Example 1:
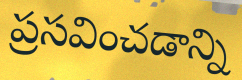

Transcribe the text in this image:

ప్రసవించడాన్ని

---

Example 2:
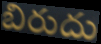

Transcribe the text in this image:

బిరుదు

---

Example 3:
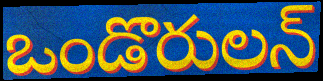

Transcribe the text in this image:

ఒండొరులన్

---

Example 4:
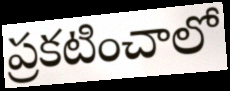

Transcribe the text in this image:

ప్రకటించాలో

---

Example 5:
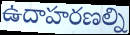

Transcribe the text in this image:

ఉదాహరణల్ని